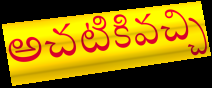
అచటికివచ్చి